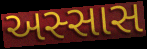
અસ્સાસ